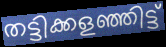
തട്ടിക്കളഞ്ഞിട്ട്